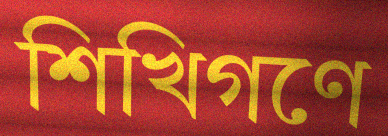
শিখিগণে